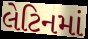
લેટિનમાં